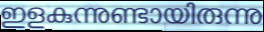
ഇളകുന്നുണ്ടായിരുന്നു